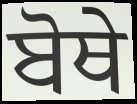
ਬੋਥੇ